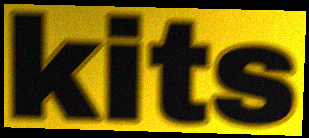
kits